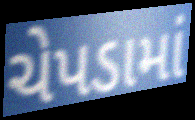
ચેપડામાં